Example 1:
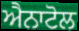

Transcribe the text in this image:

ਐਨਾਟੋਲ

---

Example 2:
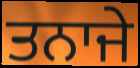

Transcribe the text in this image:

ਤਨਾਜੇ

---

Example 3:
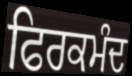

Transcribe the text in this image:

ਫਿਰਕਮੰਦ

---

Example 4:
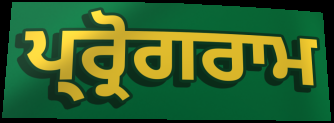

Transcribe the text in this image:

ਪ੍ਰ੍ਰੋਗਰਾਮ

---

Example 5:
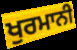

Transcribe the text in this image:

ਖੁਰਮਾਨੀ